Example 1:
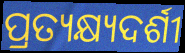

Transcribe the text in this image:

ପ୍ରତ୍ୟକ୍ଷ୍ୟଦର୍ଶୀ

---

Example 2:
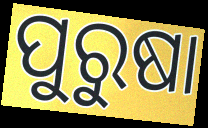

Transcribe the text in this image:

ପୁରୁଷା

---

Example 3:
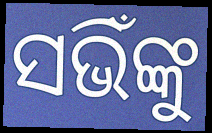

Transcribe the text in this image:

ସଭିଁଙ୍କୁ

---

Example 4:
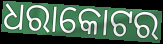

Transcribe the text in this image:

ଧରାକୋଟର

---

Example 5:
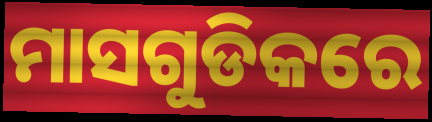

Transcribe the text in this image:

ମାସଗୁଡିକରେ